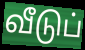
வீடுப்